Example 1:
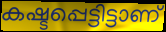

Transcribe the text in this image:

കഷ്ടപ്പെട്ടിട്ടാണ്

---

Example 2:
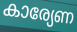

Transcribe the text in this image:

കാര്യേണ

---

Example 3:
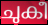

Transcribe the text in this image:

ചുകീ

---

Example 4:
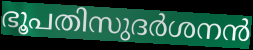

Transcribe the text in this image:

ഭൂപതിസുദർശനൻ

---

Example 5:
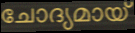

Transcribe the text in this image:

ചോദ്യമായ്